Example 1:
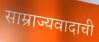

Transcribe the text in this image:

साम्राज्यवादाची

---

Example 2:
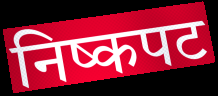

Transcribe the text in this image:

निष्कपट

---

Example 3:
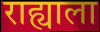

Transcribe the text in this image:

राह्याला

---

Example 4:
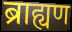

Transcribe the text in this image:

ब्राह्यण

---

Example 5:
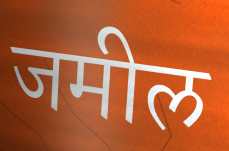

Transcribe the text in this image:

जमील